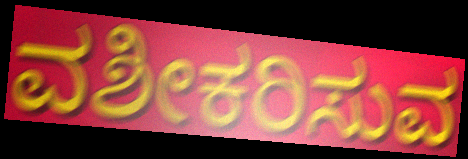
ವಶೀಕರಿಸುವ